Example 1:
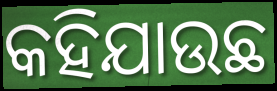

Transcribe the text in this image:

କହିଯାଉଛ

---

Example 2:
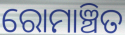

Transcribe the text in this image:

ରୋମାଞ୍ଚିତ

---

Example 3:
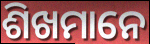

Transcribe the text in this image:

ଶିଖମାନେ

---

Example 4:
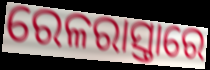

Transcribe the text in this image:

ରେଳରାସ୍ତାରେ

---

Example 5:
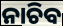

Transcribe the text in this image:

ନାଚିବ